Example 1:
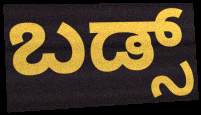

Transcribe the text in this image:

ಬಡ್ಸ್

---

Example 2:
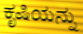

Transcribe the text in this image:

ಕೃಷಿಯನ್ನು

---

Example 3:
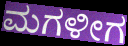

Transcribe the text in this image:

ಮಗಳೀಗ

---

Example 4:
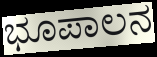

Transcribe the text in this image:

ಭೂಪಾಲನ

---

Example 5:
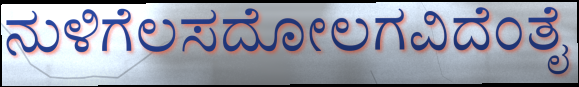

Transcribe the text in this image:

ನುಳಿಗೆಲಸದೋಲಗವಿದೆಂತೈ